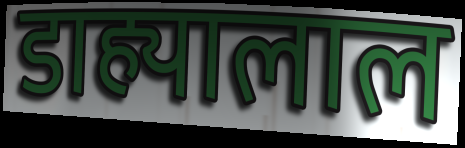
डाह्यालाल